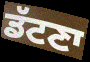
ਡੱਟਣਾ